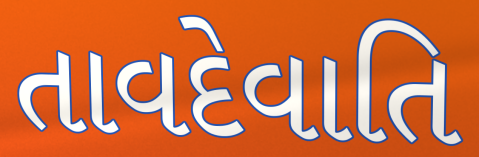
તાવદેવાતિ